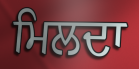
ਮਿਲਦਾ